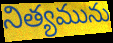
నిత్యమును